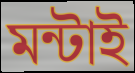
মন্টাই